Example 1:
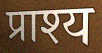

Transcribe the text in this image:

प्राश्य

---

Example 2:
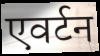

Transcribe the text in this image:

एवर्टन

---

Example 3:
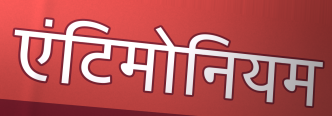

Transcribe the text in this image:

एंटिमोनियम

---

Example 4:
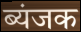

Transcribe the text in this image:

ब्यंजक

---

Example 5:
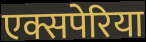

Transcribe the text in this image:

एक्सपेरिया